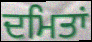
ਦਮਿਤਾਂ